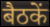
बैठकें